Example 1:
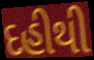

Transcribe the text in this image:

દહીથી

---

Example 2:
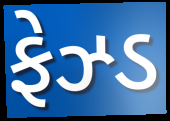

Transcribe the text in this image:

ફેઝ્ડ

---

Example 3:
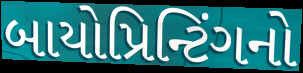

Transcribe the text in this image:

બાયોપ્રિન્ટિંગનો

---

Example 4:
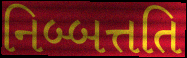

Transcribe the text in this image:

નિબ્બત્તતિ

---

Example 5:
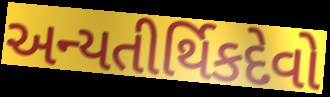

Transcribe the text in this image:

અન્યતીર્થિકદેવો